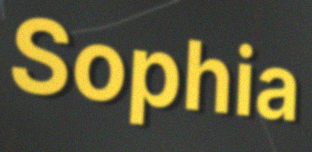
Sophia